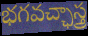
భగవచ్ఛాస్త్ర